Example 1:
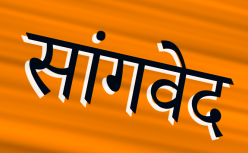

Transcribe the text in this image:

सांगवेद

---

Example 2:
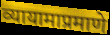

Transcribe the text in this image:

व्यायामाप्रमाणे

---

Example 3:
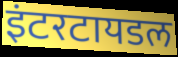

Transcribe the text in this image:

इंटरटायडल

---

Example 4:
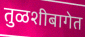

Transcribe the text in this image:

तुळशीबागेत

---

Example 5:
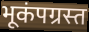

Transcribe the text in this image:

भूकंपग्रस्त